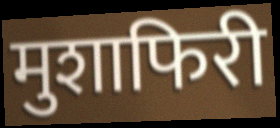
मुशाफिरी